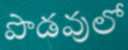
పొడవులో